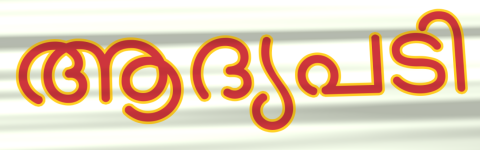
ആദ്യപടി